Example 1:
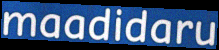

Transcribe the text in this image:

maadidaru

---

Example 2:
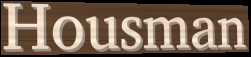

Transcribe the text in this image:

Housman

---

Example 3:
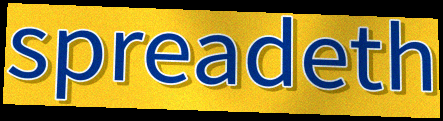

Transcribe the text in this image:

spreadeth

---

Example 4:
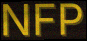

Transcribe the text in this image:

NFP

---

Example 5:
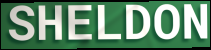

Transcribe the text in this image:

SHELDON